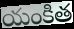
యంకిత